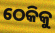
ଠେକିକୁ